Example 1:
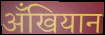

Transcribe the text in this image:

अँखियान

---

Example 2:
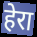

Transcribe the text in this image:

हेरा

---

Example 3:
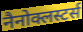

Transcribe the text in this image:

नैनोक्लस्टर्स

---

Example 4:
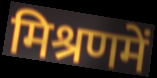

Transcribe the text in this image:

मिश्रणमें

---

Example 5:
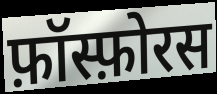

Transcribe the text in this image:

फ़ॉस्फ़ोरस